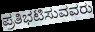
ಪ್ರತಿಭಟಿಸುವವರು